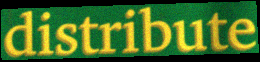
distribute